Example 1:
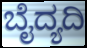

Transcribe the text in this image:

ಬೈದ್ಯದಿ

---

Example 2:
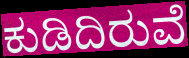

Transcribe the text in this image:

ಕುಡಿದಿರುವೆ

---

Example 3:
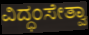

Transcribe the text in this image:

ವಿದ್ಧಂಸೇತ್ವಾ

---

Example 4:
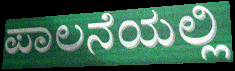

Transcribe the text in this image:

ಪಾಲನೆಯಲ್ಲಿ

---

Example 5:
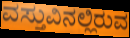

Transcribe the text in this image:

ವಸ್ತುವಿನಲ್ಲಿರುವ